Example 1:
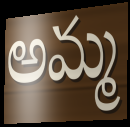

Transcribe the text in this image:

అమ్మ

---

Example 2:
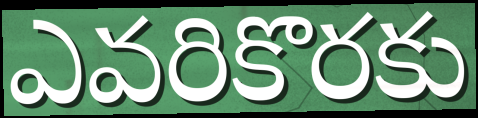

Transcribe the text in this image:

ఎవరికొరకు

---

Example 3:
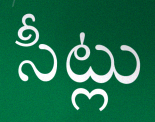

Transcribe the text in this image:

సీట్లు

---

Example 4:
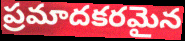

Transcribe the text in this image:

ప్రమాదకరమైన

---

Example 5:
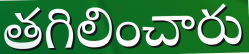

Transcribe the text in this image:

తగిలించారు